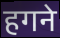
हगने